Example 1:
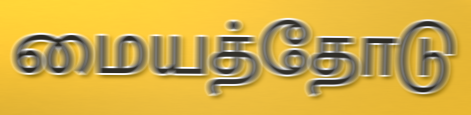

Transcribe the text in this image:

மையத்தோடு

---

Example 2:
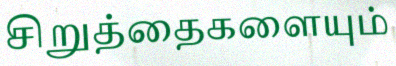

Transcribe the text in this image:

சிறுத்தைகளையும்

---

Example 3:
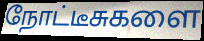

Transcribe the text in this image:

நோட்டீசுகளை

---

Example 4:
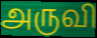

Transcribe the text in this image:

அருவி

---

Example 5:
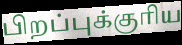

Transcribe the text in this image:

பிறப்புக்குரிய